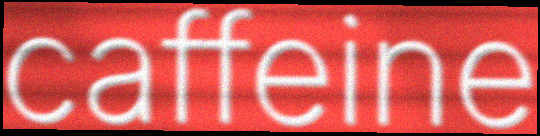
caffeine